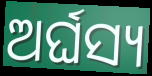
ଅର୍ଘସ୍ୟ